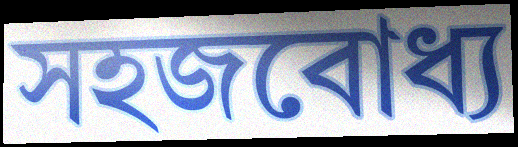
সহজবোধ্য